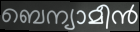
ബെന്യാമീൻ